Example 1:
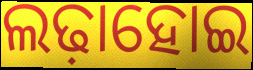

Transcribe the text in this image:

ଲଢ଼ାହୋଇ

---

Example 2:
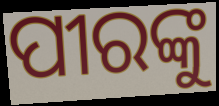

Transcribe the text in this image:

ପୀରଙ୍କୁ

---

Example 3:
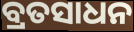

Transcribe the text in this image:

ବ୍ରତସାଧନ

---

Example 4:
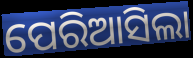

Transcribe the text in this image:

ପେରିଆସିଲା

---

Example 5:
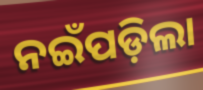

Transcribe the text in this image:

ନଇଁପଡ଼ିଲା